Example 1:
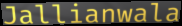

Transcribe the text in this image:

Jallianwala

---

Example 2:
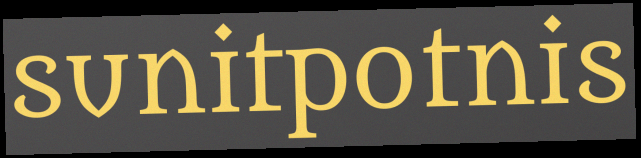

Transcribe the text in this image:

sunitpotnis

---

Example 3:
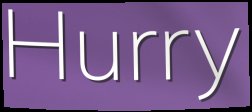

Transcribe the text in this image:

Hurry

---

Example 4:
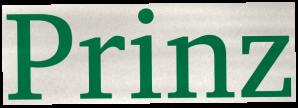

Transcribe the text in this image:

Prinz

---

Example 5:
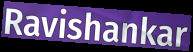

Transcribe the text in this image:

Ravishankar